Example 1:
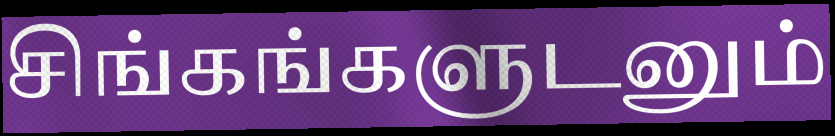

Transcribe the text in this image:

சிங்கங்களுடனும்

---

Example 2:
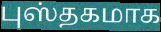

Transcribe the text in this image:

புஸ்தகமாக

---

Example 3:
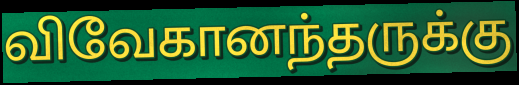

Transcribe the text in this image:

விவேகானந்தருக்கு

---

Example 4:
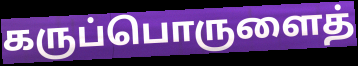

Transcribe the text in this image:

கருப்பொருளைத்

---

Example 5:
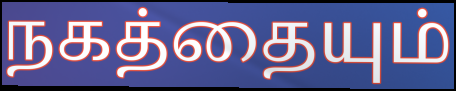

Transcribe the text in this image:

நகத்தையும்